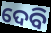
ଦେବି